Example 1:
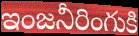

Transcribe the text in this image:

ఇంజనీరింగుకి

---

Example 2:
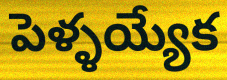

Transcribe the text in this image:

పెళ్ళయ్యేక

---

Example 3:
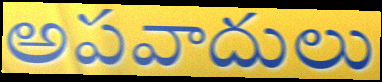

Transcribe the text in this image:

అపవాదులు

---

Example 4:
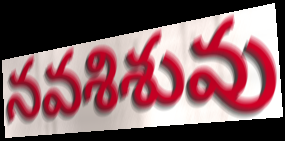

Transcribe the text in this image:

నవశిశువు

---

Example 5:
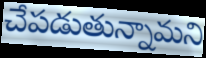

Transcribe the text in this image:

చేపడుతున్నామని